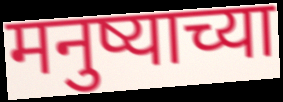
मनुष्याच्या